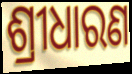
ଶ୍ରୀଧାରଣ